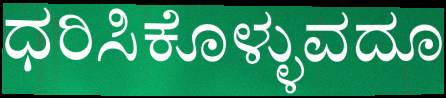
ಧರಿಸಿಕೊಳ್ಳುವದೂ